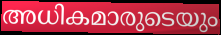
അധികമാരുടെയും